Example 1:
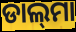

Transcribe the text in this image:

ଡାଲ୍‍ମା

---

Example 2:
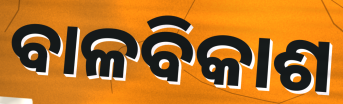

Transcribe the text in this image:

ବାଳବିକାଶ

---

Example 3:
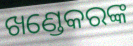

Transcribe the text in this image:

ଖଣ୍ଡେକରଙ୍କ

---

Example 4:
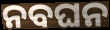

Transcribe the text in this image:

ନବଘନ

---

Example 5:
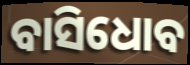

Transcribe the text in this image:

ବାସିଧୋବ